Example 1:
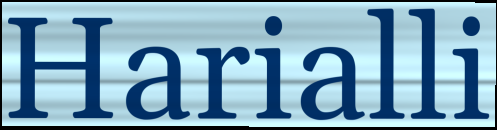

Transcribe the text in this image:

Harialli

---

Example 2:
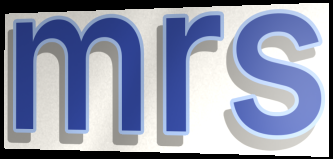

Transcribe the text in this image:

mrs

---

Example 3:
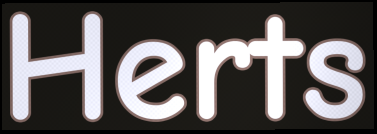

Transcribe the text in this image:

Herts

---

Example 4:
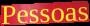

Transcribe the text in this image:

Pessoas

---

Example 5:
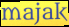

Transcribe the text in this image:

majak